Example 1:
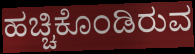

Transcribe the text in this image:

ಹಚ್ಚಿಕೊಂಡಿರುವ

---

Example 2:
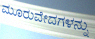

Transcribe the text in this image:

ಮೂರುವೇದಗಳನ್ನು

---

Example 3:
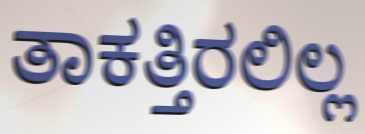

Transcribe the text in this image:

ತಾಕತ್ತಿರಲಿಲ್ಲ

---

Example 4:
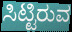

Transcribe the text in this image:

ಸಿಟ್ಟಿರುವ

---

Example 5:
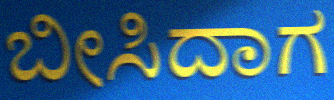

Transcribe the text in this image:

ಬೀಸಿದಾಗ